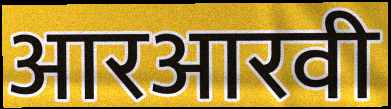
आरआरवी